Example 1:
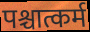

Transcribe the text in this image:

पश्चात्कर्म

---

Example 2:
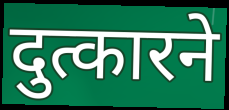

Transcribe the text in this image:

दुत्कारने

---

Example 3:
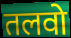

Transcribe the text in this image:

तलवो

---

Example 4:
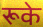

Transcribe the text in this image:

रूके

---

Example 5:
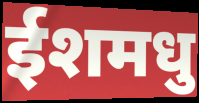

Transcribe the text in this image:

ईशमधु